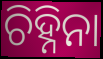
ଚିହ୍ନିନା